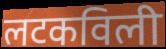
लटकविली